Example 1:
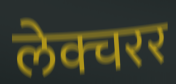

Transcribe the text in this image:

लेक्चरर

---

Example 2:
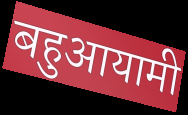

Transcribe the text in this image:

बहुआयामी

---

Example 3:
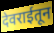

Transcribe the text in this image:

देवराईतून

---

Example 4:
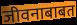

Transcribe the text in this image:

जीवनाबाबत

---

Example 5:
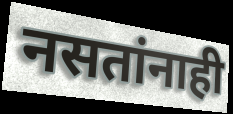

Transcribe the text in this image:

नसतांनाही